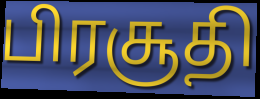
பிரசூதி